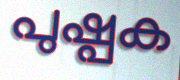
പുഷ്പക